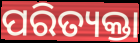
ପରିତ୍ୟକ୍ତା